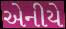
એનીયે